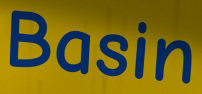
Basin